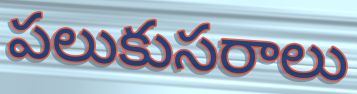
పలుకుసరాలు